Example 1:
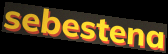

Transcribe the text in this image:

sebestena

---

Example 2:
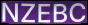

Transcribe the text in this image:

NZEBC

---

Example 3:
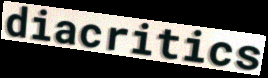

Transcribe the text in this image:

diacritics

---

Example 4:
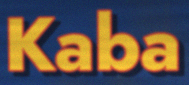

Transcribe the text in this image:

Kaba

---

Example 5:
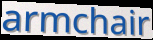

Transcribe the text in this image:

armchair